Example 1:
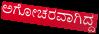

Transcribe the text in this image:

ಅಗೋಚರವಾಗಿದ್ದ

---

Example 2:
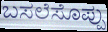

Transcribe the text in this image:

ಬಸಲೆಸೊಪ್ಪು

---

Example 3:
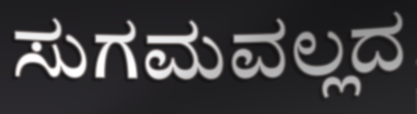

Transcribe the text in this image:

ಸುಗಮವಲ್ಲದ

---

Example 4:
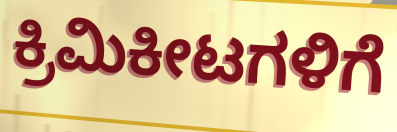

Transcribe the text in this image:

ಕ್ರಿಮಿಕೀಟಗಳಿಗೆ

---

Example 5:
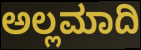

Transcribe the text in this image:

ಅಲ್ಲಮಾದಿ